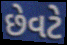
છેવટે